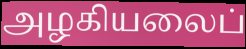
அழகியலைப்